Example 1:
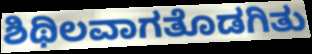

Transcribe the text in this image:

ಶಿಥಿಲವಾಗತೊಡಗಿತು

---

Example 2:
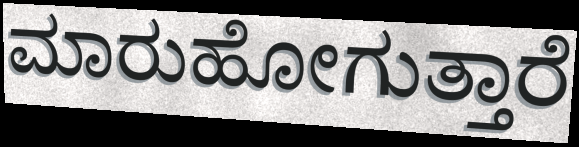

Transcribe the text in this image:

ಮಾರುಹೋಗುತ್ತಾರೆ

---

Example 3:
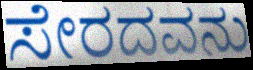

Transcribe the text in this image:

ಸೇರದವನು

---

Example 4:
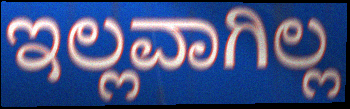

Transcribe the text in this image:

ಇಲ್ಲವಾಗಿಲ್ಲ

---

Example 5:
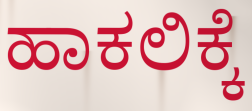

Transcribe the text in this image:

ಹಾಕಲಿಕ್ಕೆ